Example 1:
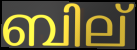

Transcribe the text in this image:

ബില്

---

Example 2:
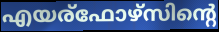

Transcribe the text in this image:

എയര്ഫോഴ്സിന്റെ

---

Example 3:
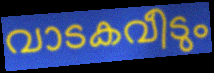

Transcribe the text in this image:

വാടകവീടും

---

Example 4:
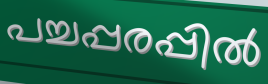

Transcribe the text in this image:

പച്ചപ്പരപ്പിൽ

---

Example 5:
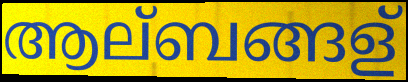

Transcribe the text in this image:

ആല്ബങ്ങള്